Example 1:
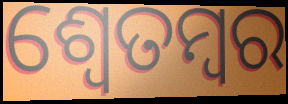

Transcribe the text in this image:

ଶ୍ଵେତମ୍ବର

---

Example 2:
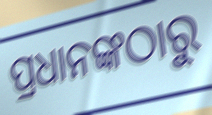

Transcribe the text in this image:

ପ୍ରଧାନଙ୍କଠାରୁ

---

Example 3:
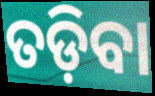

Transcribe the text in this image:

ତଡ଼ିବା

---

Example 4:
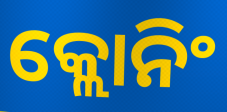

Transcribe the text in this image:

କ୍ଲୋନିଂ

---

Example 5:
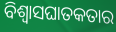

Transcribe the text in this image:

ବିଶ୍ୱାସଘାତକତାର